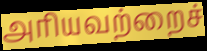
அரியவற்றைச்